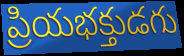
ప్రియభక్తుడగు